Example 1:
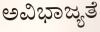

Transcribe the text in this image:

ಅವಿಭಾಜ್ಯತೆ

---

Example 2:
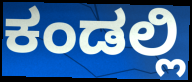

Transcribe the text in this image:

ಕಂಡಲ್ಲಿ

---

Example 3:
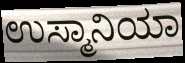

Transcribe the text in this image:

ಉಸ್ಮಾನಿಯಾ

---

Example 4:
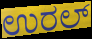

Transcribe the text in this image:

ಉರಲ್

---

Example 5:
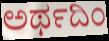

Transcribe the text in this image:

ಅರ್ಥದಿಂ